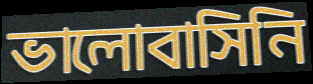
ভালোবাসিনি